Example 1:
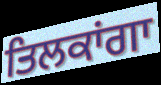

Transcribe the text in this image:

ਤਿਲਕਾਂਗਾ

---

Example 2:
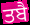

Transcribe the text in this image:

ਤਬੈ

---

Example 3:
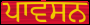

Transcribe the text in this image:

ਪਾਵਸਨ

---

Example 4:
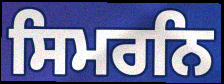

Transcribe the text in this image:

ਸਿਮਰਨਿ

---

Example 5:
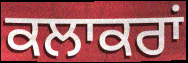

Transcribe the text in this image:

ਕਲਾਕਰਾਂ